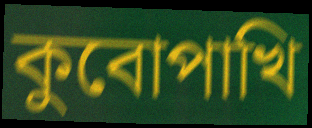
কুবোপাখি